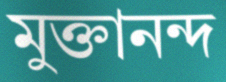
মুক্তানন্দ